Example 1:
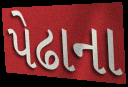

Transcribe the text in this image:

પેઢાના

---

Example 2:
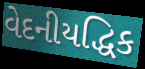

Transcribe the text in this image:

વેદનીયદ્ધિક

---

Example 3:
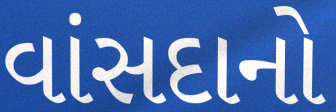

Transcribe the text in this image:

વાંસદાનો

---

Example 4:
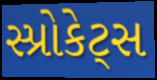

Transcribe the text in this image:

સ્પ્રોકેટ્સ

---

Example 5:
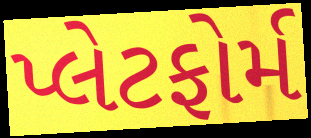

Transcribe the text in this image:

પ્લેટફોર્મ